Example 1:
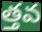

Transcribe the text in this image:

త్తవ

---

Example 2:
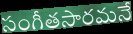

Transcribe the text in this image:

సంగీతసారమనే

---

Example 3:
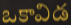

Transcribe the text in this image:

ఒకావిడ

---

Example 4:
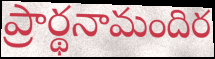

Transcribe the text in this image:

ప్రార్థనామందిర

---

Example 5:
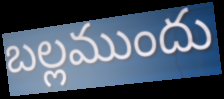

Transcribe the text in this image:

బల్లముందు